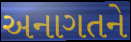
અનાગતને